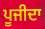
ਪੂਜੀਦਾ